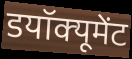
डयॉक्‍यूमेंट